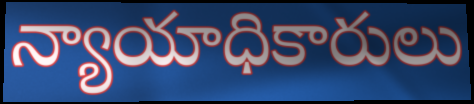
న్యాయాధికారులు